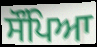
ਸੌਂਪਿਆ